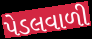
પેડલવાળી